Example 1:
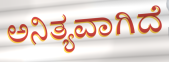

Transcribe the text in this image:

ಅನಿತ್ಯವಾಗಿದೆ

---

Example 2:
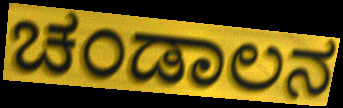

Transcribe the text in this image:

ಚಂಡಾಲನ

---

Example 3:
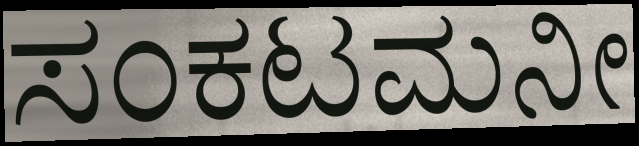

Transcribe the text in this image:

ಸಂಕಟಮನೀ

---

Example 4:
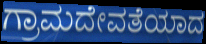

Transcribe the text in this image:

ಗ್ರಾಮದೇವತೆಯಾದ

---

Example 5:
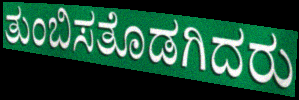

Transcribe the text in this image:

ತುಂಬಿಸತೊಡಗಿದರು